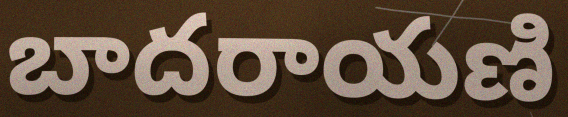
బాదరాయణి